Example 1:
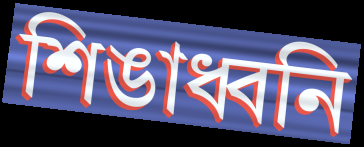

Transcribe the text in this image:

শিঙাধ্বনি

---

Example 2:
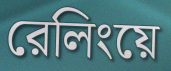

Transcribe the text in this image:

রেলিংয়ে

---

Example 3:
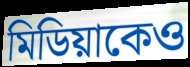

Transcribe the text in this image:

মিডিয়াকেও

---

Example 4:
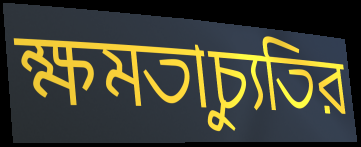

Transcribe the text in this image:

ক্ষমতাচ্যুতির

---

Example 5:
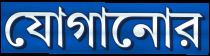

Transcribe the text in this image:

যোগানোর